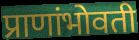
प्राणांभोवती